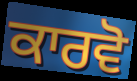
ਕਾਰਵੋ